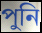
পুনি